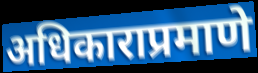
अधिकाराप्रमाणे